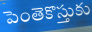
పెంతెకొస్తుకు